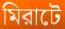
মিরাটে